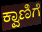
ಕ್ವಾಣಿಗೆ